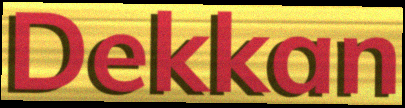
Dekkan